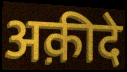
अक़ीदे